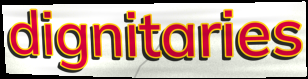
dignitaries